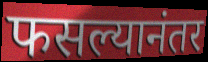
फसल्यानंतर